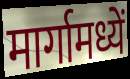
मार्गामध्यें